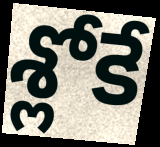
శ్లోకే